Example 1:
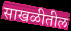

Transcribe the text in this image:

साखळीतील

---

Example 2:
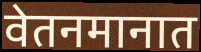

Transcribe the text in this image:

वेतनमानात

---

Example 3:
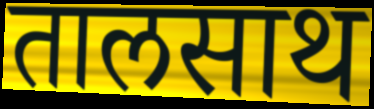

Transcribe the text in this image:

तालसाथ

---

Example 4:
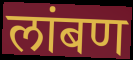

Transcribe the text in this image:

लांबण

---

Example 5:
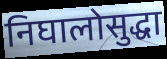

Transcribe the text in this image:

निघालोसुद्धा